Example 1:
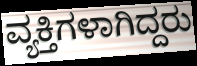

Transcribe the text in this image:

ವ್ಯಕ್ತಿಗಳಾಗಿದ್ದರು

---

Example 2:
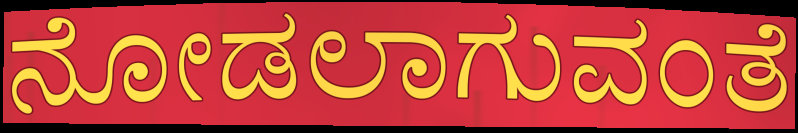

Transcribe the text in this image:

ನೋಡಲಾಗುವಂತೆ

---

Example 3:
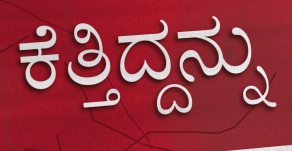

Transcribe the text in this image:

ಕೆತ್ತಿದ್ದನ್ನು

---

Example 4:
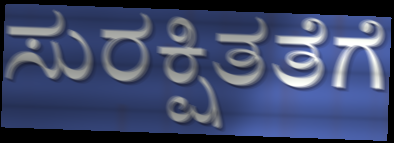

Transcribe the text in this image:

ಸುರಕ್ಷಿತತೆಗೆ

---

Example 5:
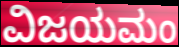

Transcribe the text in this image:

ವಿಜಯಮಂ